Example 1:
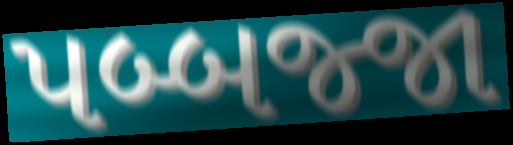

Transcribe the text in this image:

પબ્બજ્જા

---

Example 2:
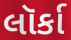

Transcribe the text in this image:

લૉર્કા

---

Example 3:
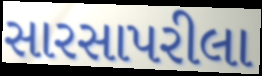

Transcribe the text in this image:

સારસાપરીલા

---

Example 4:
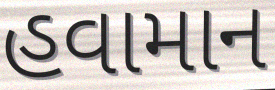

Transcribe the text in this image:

હવામાન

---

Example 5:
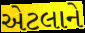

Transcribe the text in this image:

એટલાને